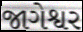
જાગેશ્વર